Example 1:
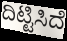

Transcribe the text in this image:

ದಿಟ್ಟಿಸಿದೆ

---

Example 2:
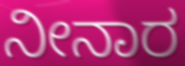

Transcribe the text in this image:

ನೀನಾರ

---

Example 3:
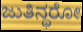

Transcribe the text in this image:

ಜುತಿನ್ಧರೋ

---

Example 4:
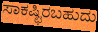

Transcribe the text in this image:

ಸಾಕಷ್ಟಿರಬಹುದು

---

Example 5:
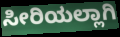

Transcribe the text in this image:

ಸೀರಿಯಲ್ಲಾಗಿ